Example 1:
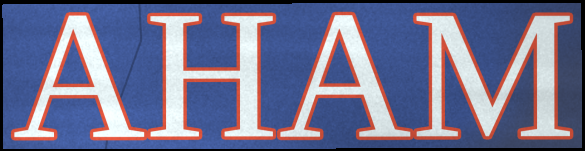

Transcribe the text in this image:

AHAM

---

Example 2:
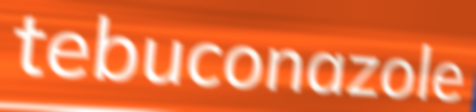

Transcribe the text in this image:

tebuconazole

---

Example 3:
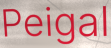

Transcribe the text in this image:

Peigal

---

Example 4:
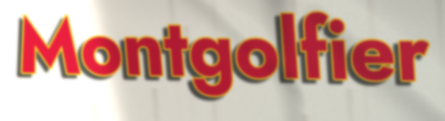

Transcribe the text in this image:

Montgolfier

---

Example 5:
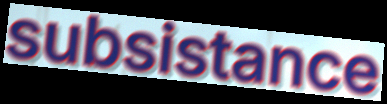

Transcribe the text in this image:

subsistance